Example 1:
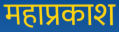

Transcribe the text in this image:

महाप्रकाश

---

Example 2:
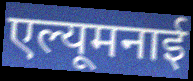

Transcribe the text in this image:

एल्यूमनाई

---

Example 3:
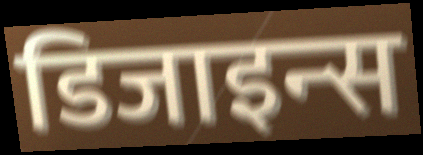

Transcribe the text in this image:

डिजाइन्स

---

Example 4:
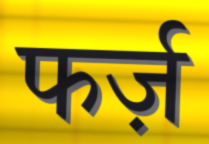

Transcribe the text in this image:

फर्ज़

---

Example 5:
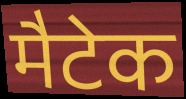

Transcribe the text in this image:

मैटेक